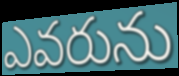
ఎవరును